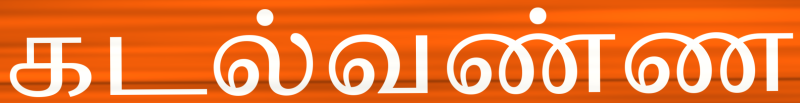
கடல்வண்ண